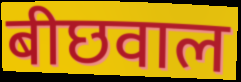
बीछवाल